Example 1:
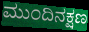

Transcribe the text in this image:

ಮುಂದಿನಕ್ಷಣ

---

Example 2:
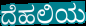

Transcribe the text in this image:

ದೆಹಲಿಯ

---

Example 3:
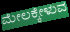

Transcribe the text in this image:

ಮೇಲಕ್ಕೇಳುವ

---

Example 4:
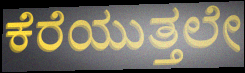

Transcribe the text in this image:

ಕೆರೆಯುತ್ತಲೇ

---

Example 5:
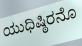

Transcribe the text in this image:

ಯುಧಿಷ್ಠಿರನೊ